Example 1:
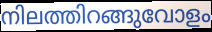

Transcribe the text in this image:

നിലത്തിറങ്ങുവോളം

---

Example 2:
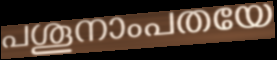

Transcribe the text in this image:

പശൂനാംപതയേ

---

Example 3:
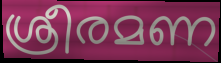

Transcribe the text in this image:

ശ്രീരമണ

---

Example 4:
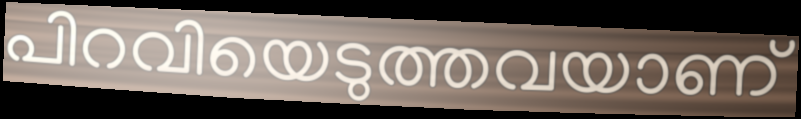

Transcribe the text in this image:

പിറവിയെടുത്തവയാണ്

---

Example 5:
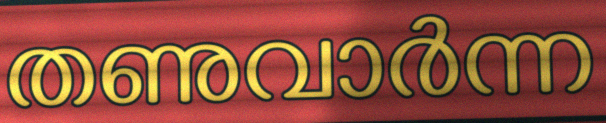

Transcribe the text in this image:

തണുവാർന്ന